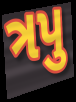
ત્રપુ